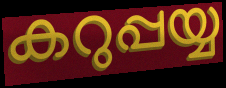
കറുപ്പയ്യ